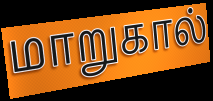
மாறுகால்